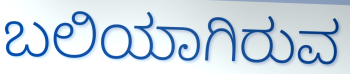
ಬಲಿಯಾಗಿರುವ